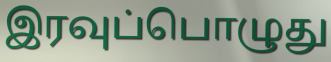
இரவுப்பொழுது